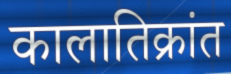
कालातिक्रांत